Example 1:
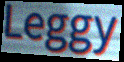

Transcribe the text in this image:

Leggy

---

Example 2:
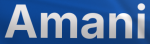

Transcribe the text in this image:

Amani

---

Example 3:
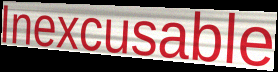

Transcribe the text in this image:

Inexcusable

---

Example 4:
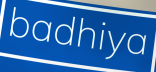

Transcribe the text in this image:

badhiya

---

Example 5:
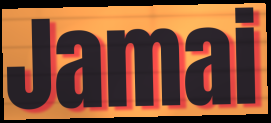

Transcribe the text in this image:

Jamai